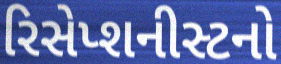
રિસેપ્શનીસ્ટનો